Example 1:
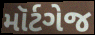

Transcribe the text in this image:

મૉર્ટગેજ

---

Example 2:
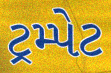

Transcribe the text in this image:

ટ્રમ્પેટ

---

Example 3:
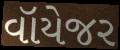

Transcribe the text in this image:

વૉયેજર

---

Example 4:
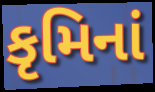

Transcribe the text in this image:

કૃમિનાં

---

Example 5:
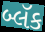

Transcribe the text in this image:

બ્લૅક